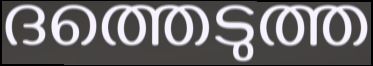
ദത്തെടുത്ത